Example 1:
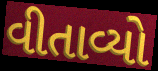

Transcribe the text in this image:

વીતાવ્યો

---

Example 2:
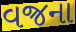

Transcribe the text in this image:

વજ્રના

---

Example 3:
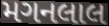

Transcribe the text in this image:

મગનલાલ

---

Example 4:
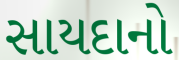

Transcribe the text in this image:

સાયદાનો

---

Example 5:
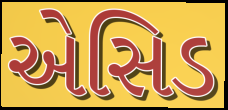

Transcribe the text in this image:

એસિડ